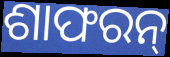
ଶାଫରନ୍